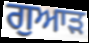
ਗੁਆੜ